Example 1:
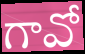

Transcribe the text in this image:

గావో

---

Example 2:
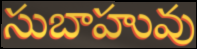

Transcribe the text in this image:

సుబాహువు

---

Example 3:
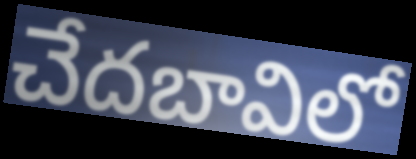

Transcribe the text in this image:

చేదబావిలో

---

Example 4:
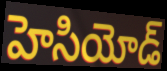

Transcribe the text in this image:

హెసియోడ్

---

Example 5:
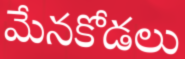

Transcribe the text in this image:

మేనకోడలు